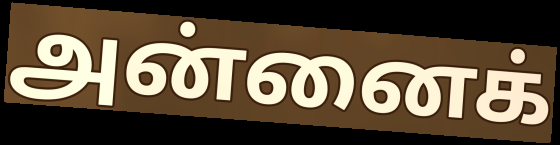
அன்னைக்